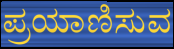
ಪ್ರಯಾಣಿಸುವ